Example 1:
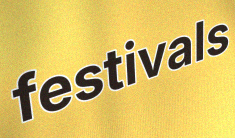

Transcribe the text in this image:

festivals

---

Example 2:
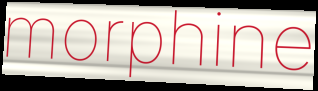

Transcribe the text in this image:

morphine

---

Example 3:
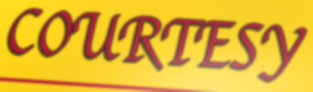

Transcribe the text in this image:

COURTESY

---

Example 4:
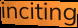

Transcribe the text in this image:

inciting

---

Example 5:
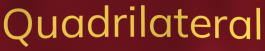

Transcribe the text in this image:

Quadrilateral